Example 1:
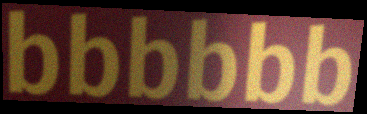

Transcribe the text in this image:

bbbbbb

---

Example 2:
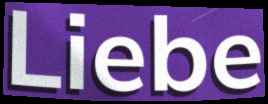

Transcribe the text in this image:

Liebe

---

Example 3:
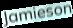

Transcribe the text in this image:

Jamieson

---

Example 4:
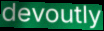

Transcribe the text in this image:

devoutly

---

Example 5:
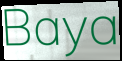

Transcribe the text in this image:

Baya